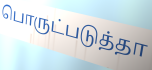
பொருட்படுத்தா